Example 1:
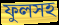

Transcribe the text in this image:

ফুলসহ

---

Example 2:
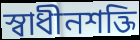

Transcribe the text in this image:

স্বাধীনশক্তি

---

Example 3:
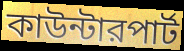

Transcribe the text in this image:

কাউন্টারপার্ট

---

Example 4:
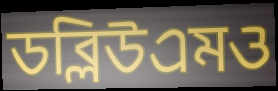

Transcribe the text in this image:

ডব্লিউএমও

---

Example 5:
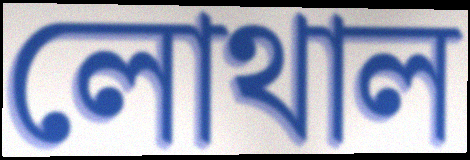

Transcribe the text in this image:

লোথাল